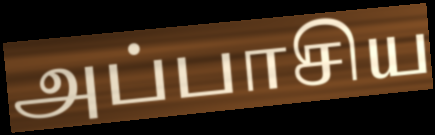
அப்பாசிய